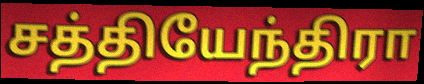
சத்தியேந்திரா